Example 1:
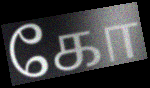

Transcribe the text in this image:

கோ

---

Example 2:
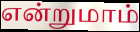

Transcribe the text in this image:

என்றுமாம்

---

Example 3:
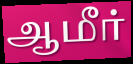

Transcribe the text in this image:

ஆமீர்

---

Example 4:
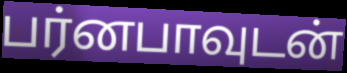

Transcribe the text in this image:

பர்னபாவுடன்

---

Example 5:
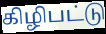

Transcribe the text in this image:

கிழிபட்டு